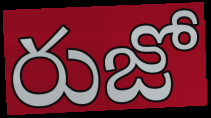
రుజో